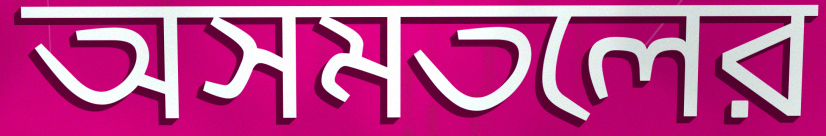
অসমতলের